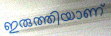
ഇരുത്തിയാണ്